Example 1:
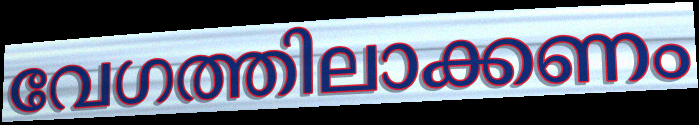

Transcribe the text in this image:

വേഗത്തിലാക്കണം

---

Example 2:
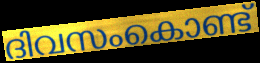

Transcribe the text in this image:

ദിവസംകൊണ്ട്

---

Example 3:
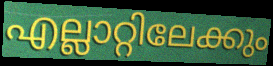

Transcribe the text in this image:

എല്ലാറ്റിലേക്കും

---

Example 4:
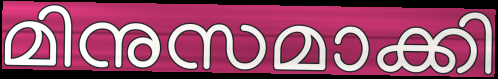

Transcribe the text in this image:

മിനുസമാക്കി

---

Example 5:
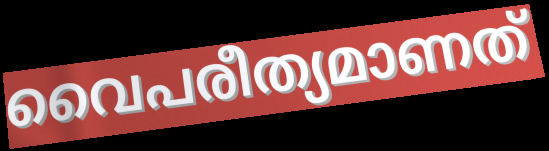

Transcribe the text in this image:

വൈപരീത്യമാണത്